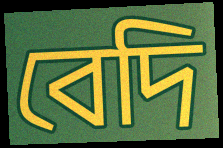
বেদি